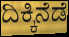
ದಿಕ್ಕಿನೆಡೆ